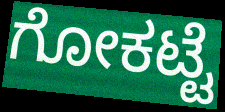
ಗೋಕಟ್ಟೆ